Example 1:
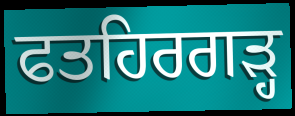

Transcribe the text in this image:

ਫਤਹਿਰਗੜ੍ਹ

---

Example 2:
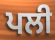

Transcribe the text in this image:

ਪਲੀ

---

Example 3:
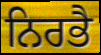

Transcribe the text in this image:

ਨਿਰਭੈ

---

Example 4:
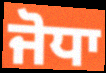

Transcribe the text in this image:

ਜੋਧਾ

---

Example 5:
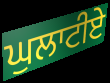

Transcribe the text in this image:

ਘੁਲਾਟੀਏ